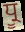
ਧ੍ਰੂ